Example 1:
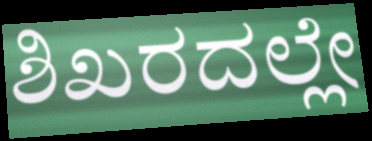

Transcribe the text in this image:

ಶಿಖರದಲ್ಲೇ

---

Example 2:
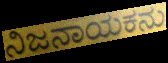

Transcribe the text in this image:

ನಿಜನಾಯಕನು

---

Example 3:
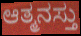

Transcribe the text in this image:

ಆತ್ಮನಸ್ತು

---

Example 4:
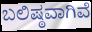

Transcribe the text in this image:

ಬಲಿಷ್ಠವಾಗಿವೆ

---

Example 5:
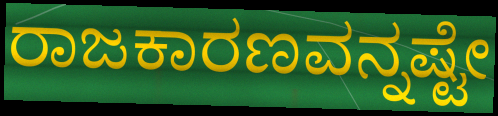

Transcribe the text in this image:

ರಾಜಕಾರಣವನ್ನಷ್ಟೇ